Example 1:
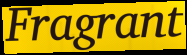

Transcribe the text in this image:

Fragrant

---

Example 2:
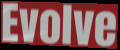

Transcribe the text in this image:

Evolve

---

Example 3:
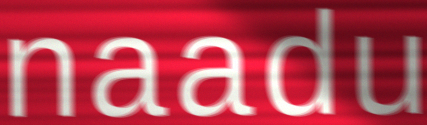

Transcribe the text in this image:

naadu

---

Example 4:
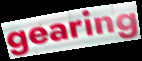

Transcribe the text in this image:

gearing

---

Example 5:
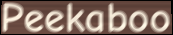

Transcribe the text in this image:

Peekaboo